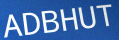
ADBHUT